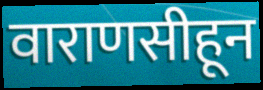
वाराणसीहून